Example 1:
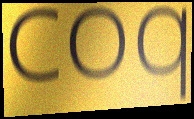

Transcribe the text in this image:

coq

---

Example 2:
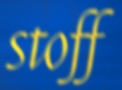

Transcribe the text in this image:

stoff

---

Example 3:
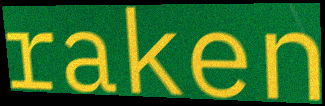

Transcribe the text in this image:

raken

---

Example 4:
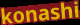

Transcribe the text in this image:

konashi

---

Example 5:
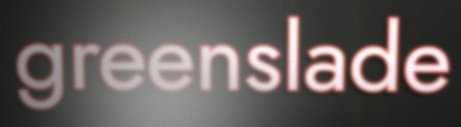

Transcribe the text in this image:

greenslade